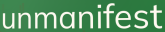
unmanifest